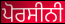
ਪੋਰਸੀਨੀ